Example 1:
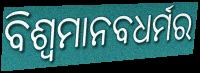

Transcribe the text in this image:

ବିଶ୍ବମାନବଧର୍ମର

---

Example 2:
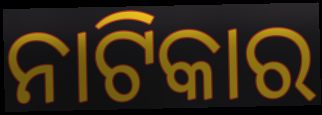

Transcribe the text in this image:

ନାଟିକାର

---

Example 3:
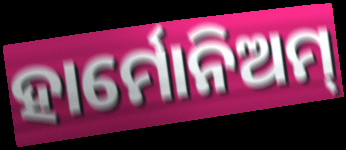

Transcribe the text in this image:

ହାର୍ମୋନିଅମ୍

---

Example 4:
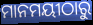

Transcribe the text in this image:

ମାନମୟୀଠାରୁ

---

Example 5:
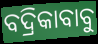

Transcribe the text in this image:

ବଦ୍ରିକାବାବୁ